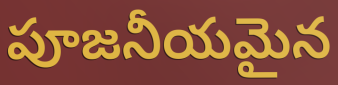
పూజనీయమైన